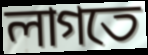
লাগতে